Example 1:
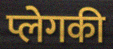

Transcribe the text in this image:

प्लेगकी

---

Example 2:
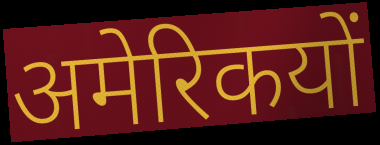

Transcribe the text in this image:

अमेरिकयों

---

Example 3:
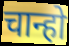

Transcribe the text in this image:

चान्हो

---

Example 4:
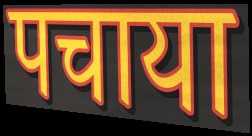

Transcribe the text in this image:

पचाया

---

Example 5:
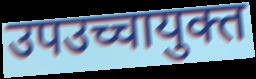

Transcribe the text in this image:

उपउच्चायुक्त